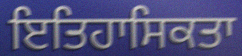
ਇਤਿਹਾਸਿਕਤਾ